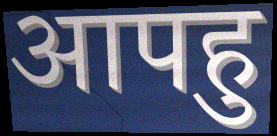
आपहु